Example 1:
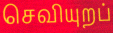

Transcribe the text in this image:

செவியுறப்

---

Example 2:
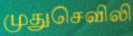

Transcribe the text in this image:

முதுசெவிலி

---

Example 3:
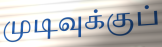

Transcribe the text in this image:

முடிவுக்குப்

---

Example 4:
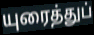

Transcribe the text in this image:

யுரைத்துப்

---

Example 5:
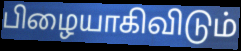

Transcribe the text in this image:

பிழையாகிவிடும்